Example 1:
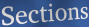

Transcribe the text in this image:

Sections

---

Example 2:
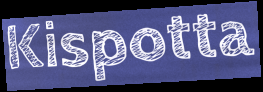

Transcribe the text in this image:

Kispotta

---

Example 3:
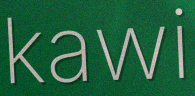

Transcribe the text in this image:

kawi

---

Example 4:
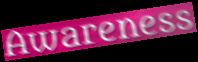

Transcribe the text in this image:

Awareness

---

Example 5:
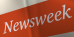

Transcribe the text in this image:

Newsweek